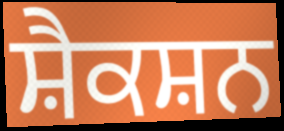
ਸ਼ੈਕਸ਼ਨ